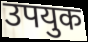
उपयुक